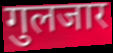
गुलजार